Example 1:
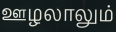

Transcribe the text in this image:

ஊழலாலும்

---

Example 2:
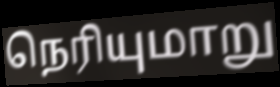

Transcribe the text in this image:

நெரியுமாறு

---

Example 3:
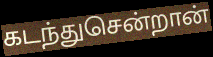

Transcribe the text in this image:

கடந்துசென்றான்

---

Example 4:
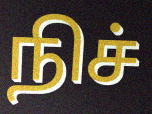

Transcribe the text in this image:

நிச்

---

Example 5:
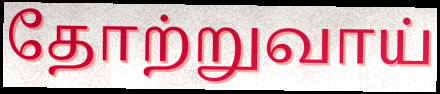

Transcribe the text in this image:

தோற்றுவாய்